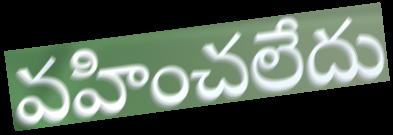
వహించలేదు